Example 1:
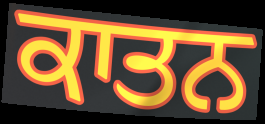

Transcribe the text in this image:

ਕਾਤਨ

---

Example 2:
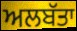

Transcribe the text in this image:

ਅਲਬੱਤਾ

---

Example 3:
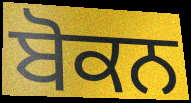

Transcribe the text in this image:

ਬੋਕਨ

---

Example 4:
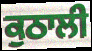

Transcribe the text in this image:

ਕੁਠਾਲੀ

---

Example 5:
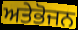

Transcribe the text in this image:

ਅਤੇਭੋਜਨ